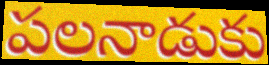
పలనాడుకు